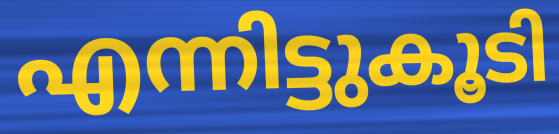
എന്നിട്ടുകൂടി